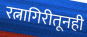
रत्नागिरीतूनही